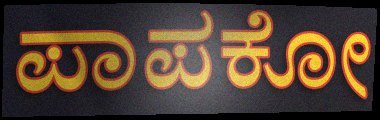
ಪಾಪಕೋ